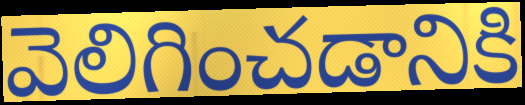
వెలిగించడానికి